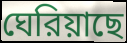
ঘেরিয়াছে